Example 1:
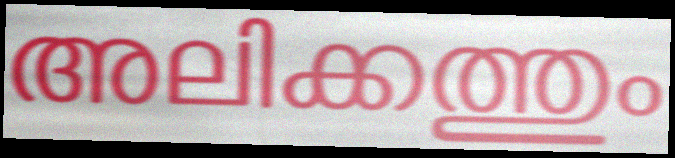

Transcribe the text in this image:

അലിക്കത്തും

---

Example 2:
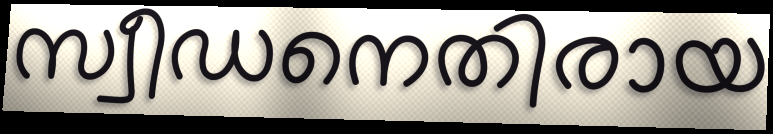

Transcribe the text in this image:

സ്വീഡനെതിരായ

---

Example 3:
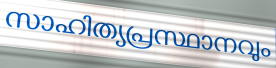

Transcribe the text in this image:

സാഹിത്യപ്രസ്ഥാനവും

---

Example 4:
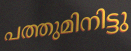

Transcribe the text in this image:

പത്തുമിനിട്ടു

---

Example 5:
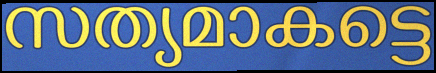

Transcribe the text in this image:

സത്യമാകട്ടെ